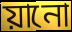
য়ানো